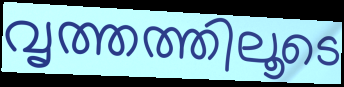
വൃത്തത്തിലൂടെ